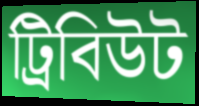
ট্রিবিউট